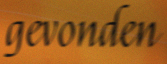
gevonden